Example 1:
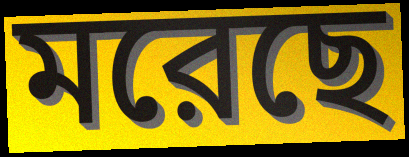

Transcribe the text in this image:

মরেছে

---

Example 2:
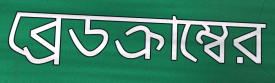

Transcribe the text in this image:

ব্রেডক্রাম্বের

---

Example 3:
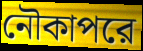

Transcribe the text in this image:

নৌকাপরে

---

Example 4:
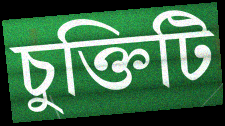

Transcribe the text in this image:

চুক্তিটি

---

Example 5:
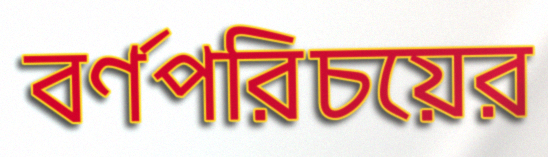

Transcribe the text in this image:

বর্ণপরিচয়ের